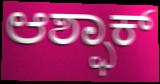
ಆಶ್ಫಾಕ್